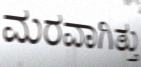
ಮರವಾಗಿತ್ತು